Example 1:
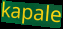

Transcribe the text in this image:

kapale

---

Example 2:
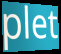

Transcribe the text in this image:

plet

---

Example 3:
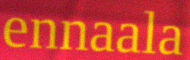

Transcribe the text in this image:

ennaala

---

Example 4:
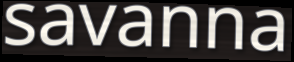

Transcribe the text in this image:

savanna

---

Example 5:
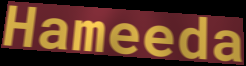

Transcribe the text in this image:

Hameeda